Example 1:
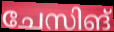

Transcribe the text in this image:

ചേസിങ്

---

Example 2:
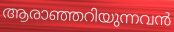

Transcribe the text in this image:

ആരാഞ്ഞറിയുന്നവൻ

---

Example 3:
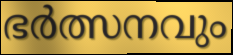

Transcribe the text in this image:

ഭർത്സനവും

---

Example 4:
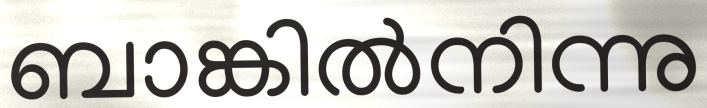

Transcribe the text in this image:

ബാങ്കിൽനിന്നു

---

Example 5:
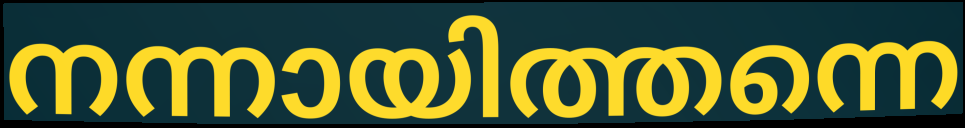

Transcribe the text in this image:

നന്നായിത്തന്നെ